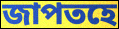
জাপতহে